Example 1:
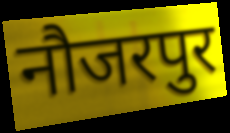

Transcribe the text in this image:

नौजरपुर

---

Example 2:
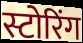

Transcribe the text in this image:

स्टोरिंग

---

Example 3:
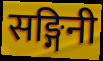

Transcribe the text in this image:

सङ्गिनी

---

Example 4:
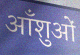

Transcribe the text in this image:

आँशुओं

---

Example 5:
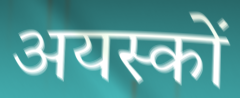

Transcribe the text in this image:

अयस्कों